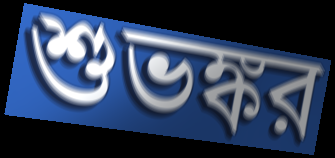
শুভঙ্কর